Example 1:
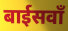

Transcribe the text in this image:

बाईसवाँ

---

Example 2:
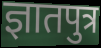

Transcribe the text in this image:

ज्ञातपुत्र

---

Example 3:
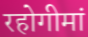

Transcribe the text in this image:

रहोगीमां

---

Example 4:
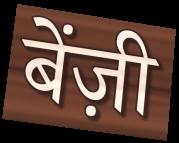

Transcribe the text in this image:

बेंज़ी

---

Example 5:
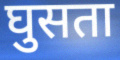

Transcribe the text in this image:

घुसता